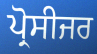
ਪ੍ਰੋਸੀਜਰ